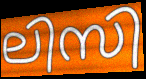
ലിസി